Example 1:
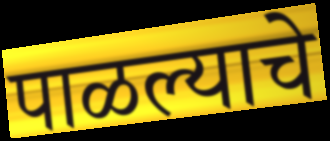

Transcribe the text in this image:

पाळल्याचे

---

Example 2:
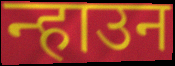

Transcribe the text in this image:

न्हाउन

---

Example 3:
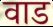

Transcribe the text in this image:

वाड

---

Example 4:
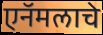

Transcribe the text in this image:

एनॅमलाचे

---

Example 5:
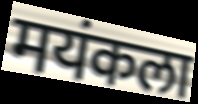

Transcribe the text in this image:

मयंकला